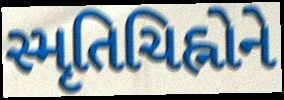
સ્મૃતિચિહ્નોને